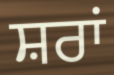
ਸ਼ਰਾਂ